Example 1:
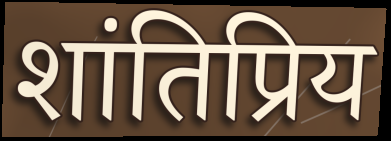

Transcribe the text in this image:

शांतिप्रिय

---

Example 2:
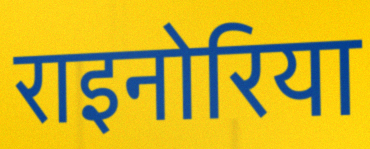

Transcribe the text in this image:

राइनोरिया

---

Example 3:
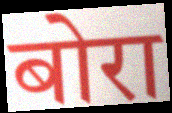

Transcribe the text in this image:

बोरा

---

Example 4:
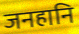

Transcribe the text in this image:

जनहानि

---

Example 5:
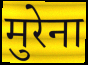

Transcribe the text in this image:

मुरेना